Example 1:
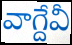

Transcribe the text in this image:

వాగ్దేవీ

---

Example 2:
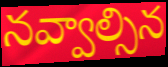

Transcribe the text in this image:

నవ్వాల్సిన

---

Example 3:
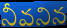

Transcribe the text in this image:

నీవనిన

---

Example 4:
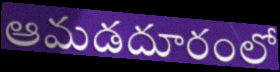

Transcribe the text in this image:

ఆమడదూరంలో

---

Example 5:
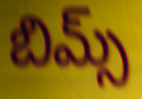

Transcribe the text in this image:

బిమ్స్